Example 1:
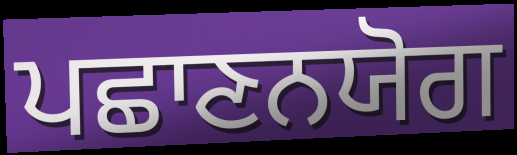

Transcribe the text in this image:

ਪਛਾਣਨਯੋਗ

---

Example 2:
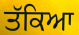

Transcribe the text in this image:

ਤੱਕਿਆ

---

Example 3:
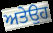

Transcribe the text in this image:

ਅਤੇਉਹ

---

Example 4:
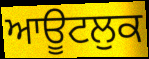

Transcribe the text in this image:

ਆਊਟਲੁਕ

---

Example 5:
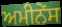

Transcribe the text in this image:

ਅਮੀਨੇਂਸ